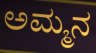
ಅಮ್ಮನ